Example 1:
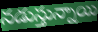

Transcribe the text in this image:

నడుస్తున్నాయి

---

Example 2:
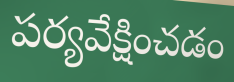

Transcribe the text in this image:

పర్యవేక్షించడం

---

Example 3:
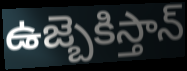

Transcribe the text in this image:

ఉజ్బెకిస్తాన్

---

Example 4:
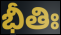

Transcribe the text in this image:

భీతిః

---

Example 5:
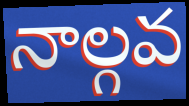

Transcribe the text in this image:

నాల్గవ